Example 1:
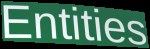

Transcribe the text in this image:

Entities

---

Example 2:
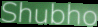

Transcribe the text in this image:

Shubho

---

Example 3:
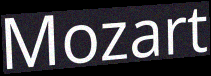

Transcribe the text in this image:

Mozart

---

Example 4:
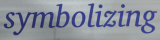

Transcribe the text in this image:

symbolizing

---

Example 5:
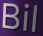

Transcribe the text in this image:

Bil